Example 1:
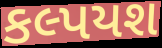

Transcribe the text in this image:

કલ્પયશ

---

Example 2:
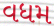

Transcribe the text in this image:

વધમ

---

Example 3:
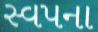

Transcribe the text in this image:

સ્વપના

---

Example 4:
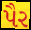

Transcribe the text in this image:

પૈર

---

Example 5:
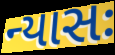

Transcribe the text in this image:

ન્યાસઃ